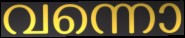
വന്നൊ